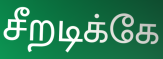
சீறடிக்கே